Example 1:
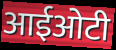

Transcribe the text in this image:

आईओटी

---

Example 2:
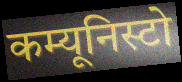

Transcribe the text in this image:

कम्यूनिस्टो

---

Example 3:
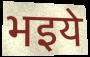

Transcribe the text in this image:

भइये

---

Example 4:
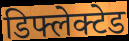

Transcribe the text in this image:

डिफ्लेक्टेड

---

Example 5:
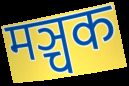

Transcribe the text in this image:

मञ्चक